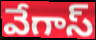
వేగాస్